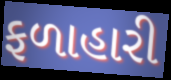
ફળાહારી